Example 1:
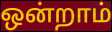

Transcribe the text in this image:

ஒன்றாம்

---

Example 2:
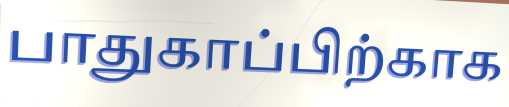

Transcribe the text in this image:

பாதுகாப்பிற்காக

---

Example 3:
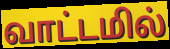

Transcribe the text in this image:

வாட்டமில்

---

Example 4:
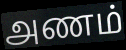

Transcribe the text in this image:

அணம்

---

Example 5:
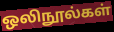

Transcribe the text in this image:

ஒலிநூல்கள்